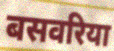
बसवरिया